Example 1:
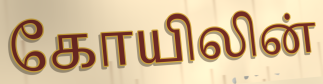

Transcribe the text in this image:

கோயிலின்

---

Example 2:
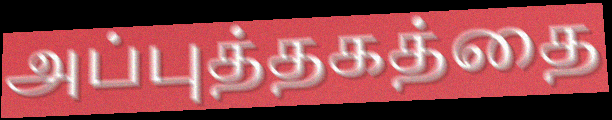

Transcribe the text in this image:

அப்புத்தகத்தை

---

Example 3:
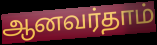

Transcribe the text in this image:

ஆனவர்தாம்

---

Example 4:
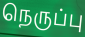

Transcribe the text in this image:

நெருப்பு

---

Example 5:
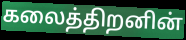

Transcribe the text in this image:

கலைத்திறனின்